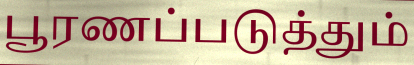
பூரணப்படுத்தும்